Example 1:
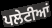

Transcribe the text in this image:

ਪਲੇਟੀਆਂ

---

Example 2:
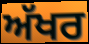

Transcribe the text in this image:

ਅੱਖਰ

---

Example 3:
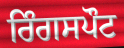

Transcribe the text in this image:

ਰਿੰਗਸਪੌਟ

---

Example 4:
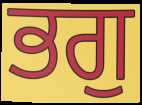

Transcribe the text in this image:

ਭਗੁ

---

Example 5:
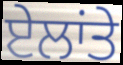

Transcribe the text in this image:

ਏਲਾਂਤੇ